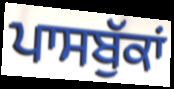
ਪਾਸਬੁੱਕਾਂ